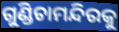
ଗୁଣ୍ଡିଚାମନ୍ଦିରକୁ